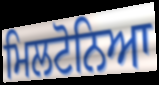
ਮਿਲਟੋਨਿਆ